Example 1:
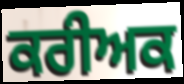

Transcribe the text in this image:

ਕਰੀਅਕ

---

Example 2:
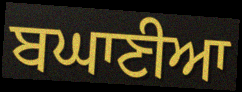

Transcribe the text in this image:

ਬਘਾਣੀਆ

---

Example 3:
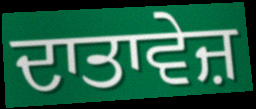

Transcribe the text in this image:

ਦਾਤਾਵੇਜ਼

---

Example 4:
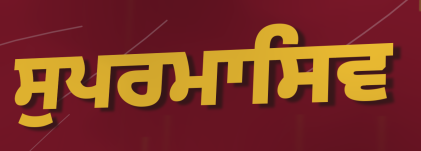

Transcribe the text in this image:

ਸੁਪਰਮਾਸਿਵ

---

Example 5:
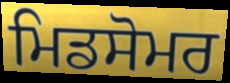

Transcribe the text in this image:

ਮਿਡਸੋਮਰ